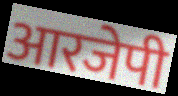
आरजेपी